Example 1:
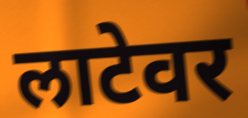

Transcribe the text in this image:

लाटेवर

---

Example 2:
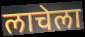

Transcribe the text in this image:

लाचेला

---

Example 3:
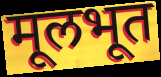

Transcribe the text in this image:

मूलभूत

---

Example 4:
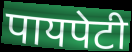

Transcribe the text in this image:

पायपेटी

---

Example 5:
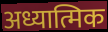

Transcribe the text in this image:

अध्यात्मिक